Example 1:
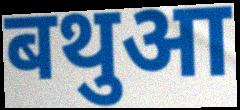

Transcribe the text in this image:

बथुआ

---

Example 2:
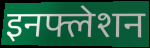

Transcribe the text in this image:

इनफ्लेशन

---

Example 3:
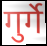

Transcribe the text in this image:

गुर्गे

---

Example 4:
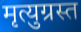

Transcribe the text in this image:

मृत्युग्रस्त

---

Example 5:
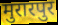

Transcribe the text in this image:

मुरारपुर